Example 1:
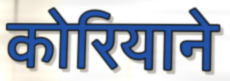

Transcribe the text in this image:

कोरियाने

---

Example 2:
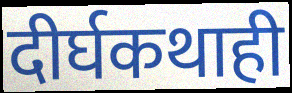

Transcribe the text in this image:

दीर्घकथाही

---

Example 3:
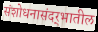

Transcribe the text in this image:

संशोधनासंदर्भातील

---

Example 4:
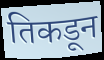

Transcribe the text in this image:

तिकडून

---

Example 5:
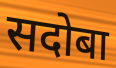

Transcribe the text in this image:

सदोबा